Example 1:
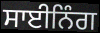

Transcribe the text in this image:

ਸਾਈਨਿੰਗ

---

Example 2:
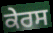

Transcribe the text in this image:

ਕੇਰਸ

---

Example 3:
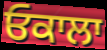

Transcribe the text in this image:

ਓਕਾਲਾ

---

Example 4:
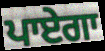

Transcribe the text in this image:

ਪਾਏਗਾ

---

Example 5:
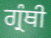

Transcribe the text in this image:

ਗ੍ਰੰਥੀ